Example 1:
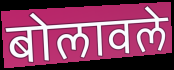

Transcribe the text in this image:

बोलावले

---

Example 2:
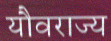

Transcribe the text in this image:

यौवराज्य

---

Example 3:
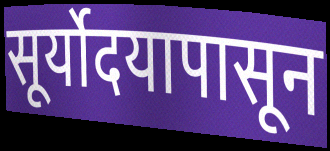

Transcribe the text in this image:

सूर्योदयापासून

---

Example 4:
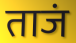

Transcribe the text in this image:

ताजं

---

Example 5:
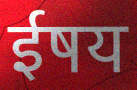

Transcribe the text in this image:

ईषय